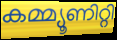
കമ്മ്യൂണിറ്റി